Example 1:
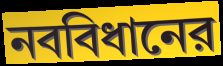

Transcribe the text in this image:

নববিধানের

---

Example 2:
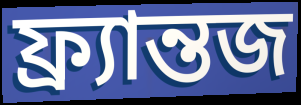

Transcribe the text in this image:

ফ্র্যান্তজ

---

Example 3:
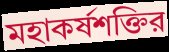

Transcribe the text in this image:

মহাকর্ষশক্তির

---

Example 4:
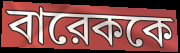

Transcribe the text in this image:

বারেককে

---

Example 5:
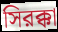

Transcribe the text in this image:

সিরক্কা